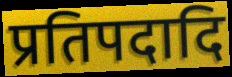
प्रतिपदादि